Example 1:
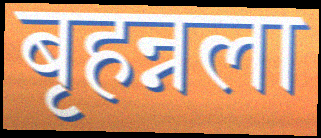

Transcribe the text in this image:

बृहन्नला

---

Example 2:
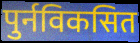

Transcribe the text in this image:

पुर्नविकसित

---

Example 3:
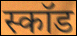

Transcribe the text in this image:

स्कॉड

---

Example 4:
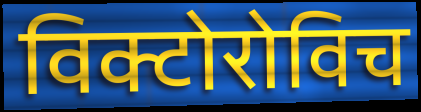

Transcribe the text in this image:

विक्टोरोविच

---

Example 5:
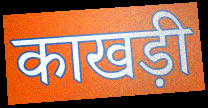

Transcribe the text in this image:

काखड़ी